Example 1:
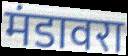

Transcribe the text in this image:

मंडावरा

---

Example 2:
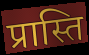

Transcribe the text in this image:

प्रास्ति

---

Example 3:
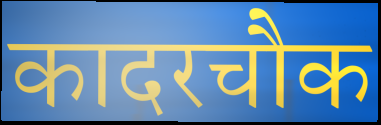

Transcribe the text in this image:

कादरचौक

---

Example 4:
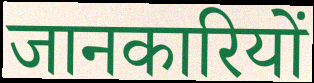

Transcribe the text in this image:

जानकारियों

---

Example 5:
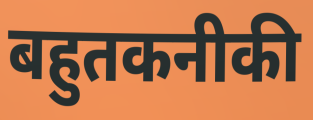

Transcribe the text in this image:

बहुतकनीकी